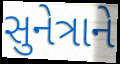
સુનેત્રાને